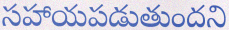
సహాయపడుతుందని